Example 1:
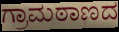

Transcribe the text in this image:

ಗ್ರಾಮಠಾಣದ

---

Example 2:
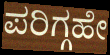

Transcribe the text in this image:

ಪರಿಗ್ಗಹೇ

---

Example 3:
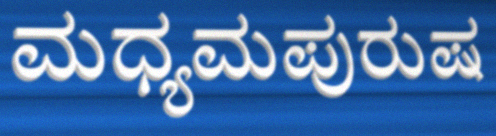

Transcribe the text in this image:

ಮಧ್ಯಮಪುರುಷ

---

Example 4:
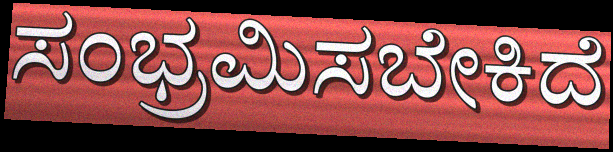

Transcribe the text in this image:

ಸಂಭ್ರಮಿಸಬೇಕಿದೆ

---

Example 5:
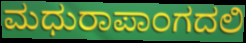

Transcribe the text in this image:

ಮಧುರಾಪಾಂಗದಲಿ